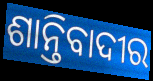
ଶାନ୍ତିବାଦୀର